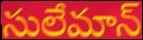
సులేమాన్